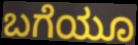
ಬಗೆಯೂ